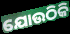
ଯୋଉଠିକି